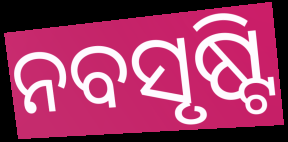
ନବସୃଷ୍ଟି